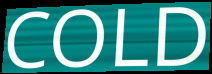
COLD